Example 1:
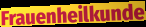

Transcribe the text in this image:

Frauenheilkunde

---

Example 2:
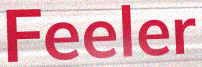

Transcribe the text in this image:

Feeler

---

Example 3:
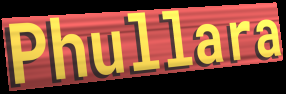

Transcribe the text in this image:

Phullara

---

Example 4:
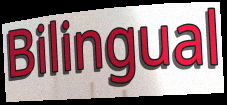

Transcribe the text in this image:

Bilingual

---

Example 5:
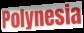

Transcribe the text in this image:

Polynesia